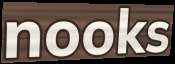
nooks